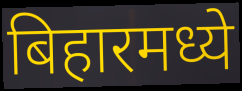
बिहारमध्ये